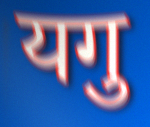
यगु